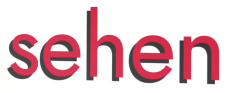
sehen